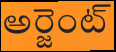
అర్జెంట్